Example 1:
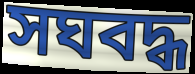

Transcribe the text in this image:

সঘবদ্ধ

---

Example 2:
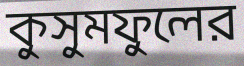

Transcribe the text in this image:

কুসুমফুলের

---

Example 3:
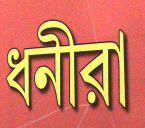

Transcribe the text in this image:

ধনীরা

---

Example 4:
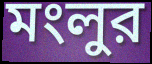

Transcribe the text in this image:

মংলুর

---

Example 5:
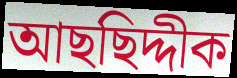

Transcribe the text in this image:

আছছিদ্দীক